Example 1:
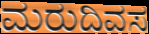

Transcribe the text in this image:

ಮರುದಿವಸ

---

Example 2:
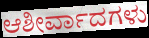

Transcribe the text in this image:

ಆಶೀರ್ವಾದಗಳು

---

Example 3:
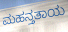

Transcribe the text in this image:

ಮಹನ್ತತಾಯ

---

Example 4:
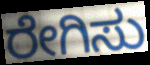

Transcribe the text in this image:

ರೇಗಿಸು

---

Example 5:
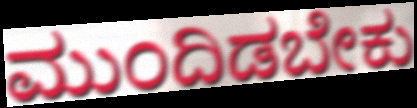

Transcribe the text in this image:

ಮುಂದಿಡಬೇಕು